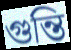
গুন্তি